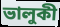
ভালুকী